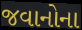
જવાનોના